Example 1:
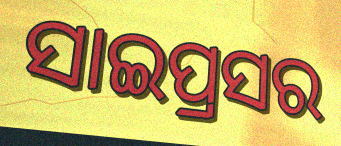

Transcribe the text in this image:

ସାଇପ୍ରସର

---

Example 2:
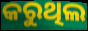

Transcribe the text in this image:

କରୁଥିଲ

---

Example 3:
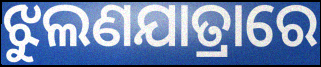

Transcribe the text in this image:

ଝୁଲଣଯାତ୍ରାରେ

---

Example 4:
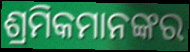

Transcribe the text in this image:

ଶ୍ରମିକମାନଙ୍କର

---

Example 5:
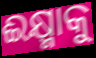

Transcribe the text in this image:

ଈକ୍ଷ୍ମାକୁ